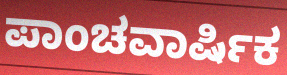
ಪಾಂಚವಾರ್ಷಿಕ